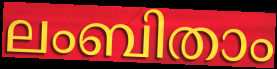
ലംബിതാം